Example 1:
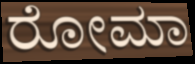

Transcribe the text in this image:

ರೋಮಾ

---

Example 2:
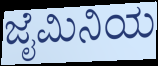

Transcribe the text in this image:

ಜೈಮಿನಿಯ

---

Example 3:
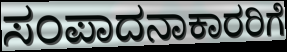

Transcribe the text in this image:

ಸಂಪಾದನಾಕಾರರಿಗೆ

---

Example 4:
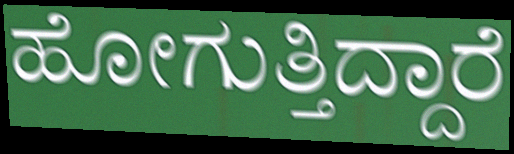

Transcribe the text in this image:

ಹೋಗುತ್ತಿದ್ದಾರೆ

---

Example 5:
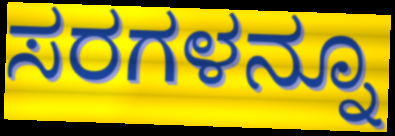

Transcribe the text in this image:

ಸರಗಳನ್ನೂ